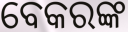
ବେକରଙ୍କ